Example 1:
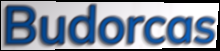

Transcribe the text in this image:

Budorcas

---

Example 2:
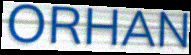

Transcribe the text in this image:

ORHAN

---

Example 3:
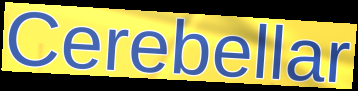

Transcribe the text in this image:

Cerebellar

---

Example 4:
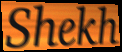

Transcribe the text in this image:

Shekh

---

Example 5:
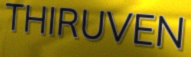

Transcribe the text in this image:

THIRUVEN